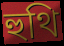
হুথি